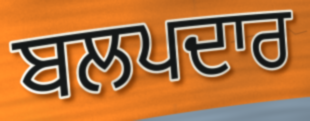
ਬਲਪਦਾਰ